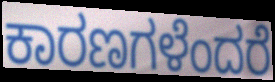
ಕಾರಣಗಳೆಂದರೆ